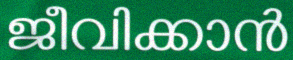
ജീവിക്കാൻ